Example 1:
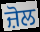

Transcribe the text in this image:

ਜ਼ੋਲ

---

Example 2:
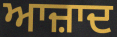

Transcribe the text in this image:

ਆਜ਼ਾਦ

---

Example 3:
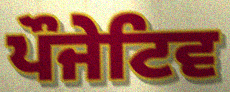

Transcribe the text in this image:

ਪੌਜੇਟਿਵ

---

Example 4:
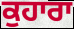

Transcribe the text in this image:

ਕੁਹਾਰਾ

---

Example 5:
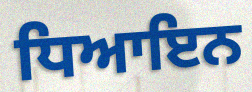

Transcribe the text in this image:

ਧਿਆਇਨ